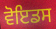
ਵੋਇਡਸ